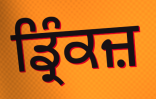
ਡ੍ਰਿੰਕਜ਼